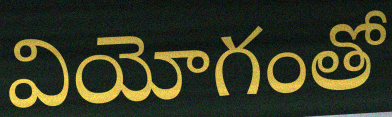
వియోగంతో